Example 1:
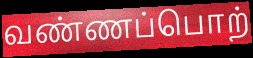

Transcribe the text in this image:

வண்ணப்பொற்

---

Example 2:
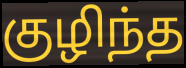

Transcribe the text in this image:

குழிந்த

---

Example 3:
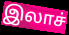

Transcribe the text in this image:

இலாச்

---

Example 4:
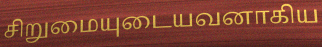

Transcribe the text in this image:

சிறுமையுடையவனாகிய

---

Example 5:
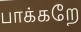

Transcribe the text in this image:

பாக்கறே